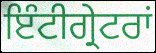
ਇੰਟੀਗ੍ਰੇਟਰਾਂ